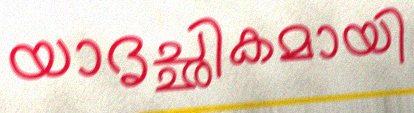
യാദൃച്ഛികമായി